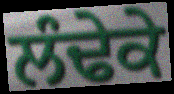
ਲੰਢੇਕੇ